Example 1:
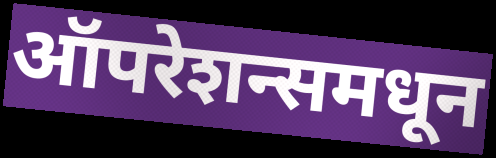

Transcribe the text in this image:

ऑपरेशन्समधून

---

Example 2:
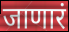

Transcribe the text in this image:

जाणारं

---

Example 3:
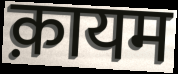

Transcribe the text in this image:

क़ायम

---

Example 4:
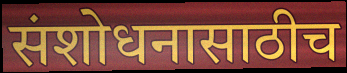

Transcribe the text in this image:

संशोधनासाठीच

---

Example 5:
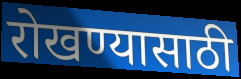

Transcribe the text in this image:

रोखण्यासाठी